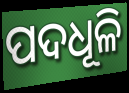
ପଦଧୂଳି